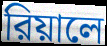
রিয়ালে